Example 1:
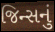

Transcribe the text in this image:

જિન્સનું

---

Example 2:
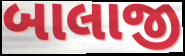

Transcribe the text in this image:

બાલાજી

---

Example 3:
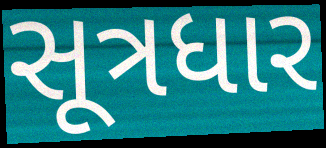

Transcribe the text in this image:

સૂત્રધાર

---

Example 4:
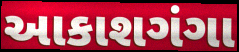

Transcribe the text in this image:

આકાશગંગા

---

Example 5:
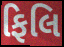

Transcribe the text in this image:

ફિલિ